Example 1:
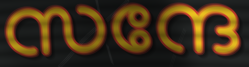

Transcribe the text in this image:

സന്ദേ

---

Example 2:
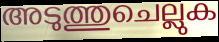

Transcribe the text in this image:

അടുത്തുചെല്ലുക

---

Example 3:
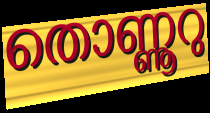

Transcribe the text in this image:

തൊണ്ണൂറു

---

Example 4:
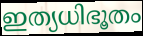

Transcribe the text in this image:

ഇത്യധിഭൂതം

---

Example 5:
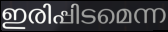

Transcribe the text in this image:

ഇരിപ്പിടമെന്ന